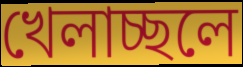
খেলাচ্ছলে